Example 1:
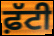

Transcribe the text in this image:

ਫ਼ੱਟੀ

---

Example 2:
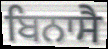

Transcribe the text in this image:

ਬਿਨਾਸੈ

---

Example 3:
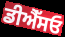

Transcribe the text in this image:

ਡੀਐੱਸਓ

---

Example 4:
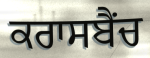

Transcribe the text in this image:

ਕਰਾਸਬੈਂਚ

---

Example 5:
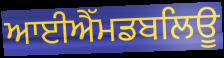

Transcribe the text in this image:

ਆਈਐੱਮਡਬਲਿਊ